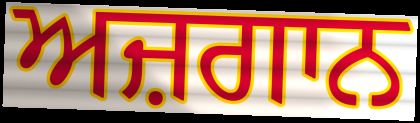
ਅਜ਼ਗਾਨ